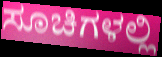
ಸೂಚಿಗಳಲ್ಲಿ